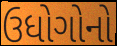
ઉધોગોનો